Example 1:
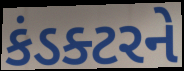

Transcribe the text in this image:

કંડક્ટરને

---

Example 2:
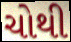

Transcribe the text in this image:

ચોથી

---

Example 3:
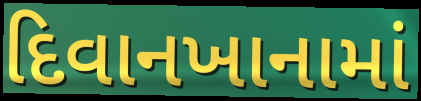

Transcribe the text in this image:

દિવાનખાનામાં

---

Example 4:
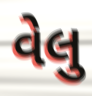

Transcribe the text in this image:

વેલુ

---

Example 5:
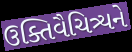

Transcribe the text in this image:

ઉક્તિવૈચિત્ર્યને